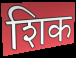
शिक